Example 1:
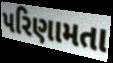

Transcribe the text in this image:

પરિણામતા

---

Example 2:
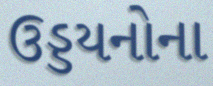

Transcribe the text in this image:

ઉડ્ડયનોના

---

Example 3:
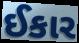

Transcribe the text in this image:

ઈકાર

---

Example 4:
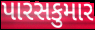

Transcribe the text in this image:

પારસકુમાર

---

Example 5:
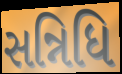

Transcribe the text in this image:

સન્નિધિ